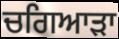
ਚਗਿਆੜਾ